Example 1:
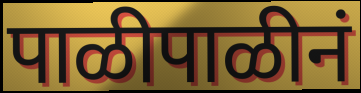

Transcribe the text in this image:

पाळीपाळीनं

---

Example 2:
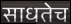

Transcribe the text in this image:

साधतेच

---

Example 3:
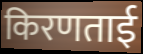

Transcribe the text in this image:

किरणताई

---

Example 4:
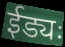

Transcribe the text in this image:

ईड्यः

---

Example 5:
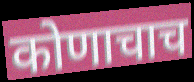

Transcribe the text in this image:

कोणाचाच